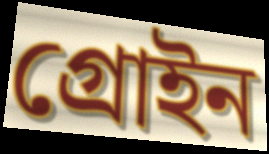
গ্রোইন